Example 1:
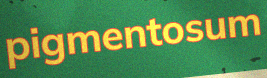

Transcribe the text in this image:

pigmentosum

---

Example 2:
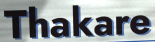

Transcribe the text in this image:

Thakare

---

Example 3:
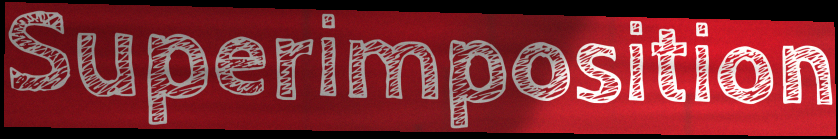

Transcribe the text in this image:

Superimposition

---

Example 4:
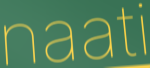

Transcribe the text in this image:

naati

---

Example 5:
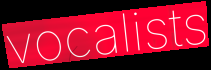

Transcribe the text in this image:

vocalists